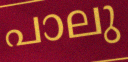
പാലു